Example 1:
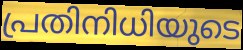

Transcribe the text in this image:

പ്രതിനിധിയുടെ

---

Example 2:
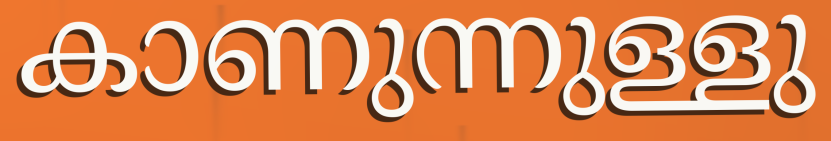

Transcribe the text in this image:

കാണുന്നുള്ളു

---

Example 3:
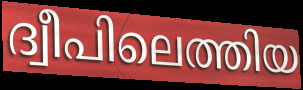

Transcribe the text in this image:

ദ്വീപിലെത്തിയ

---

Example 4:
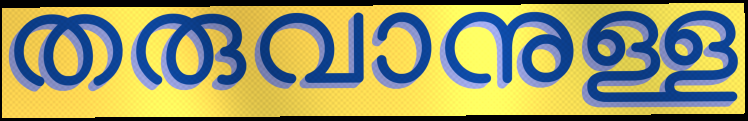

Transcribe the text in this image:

തരുവാനുള്ള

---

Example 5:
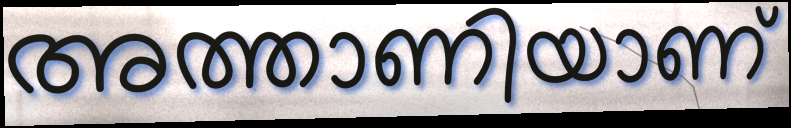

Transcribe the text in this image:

അത്താണിയാണ്